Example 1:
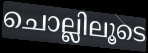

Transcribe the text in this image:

ചൊല്ലിലൂടെ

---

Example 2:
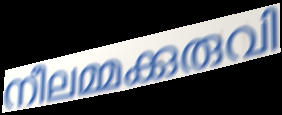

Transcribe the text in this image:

നീലമ്മക്കുരുവി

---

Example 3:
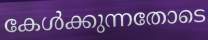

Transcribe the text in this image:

കേൾക്കുന്നതോടെ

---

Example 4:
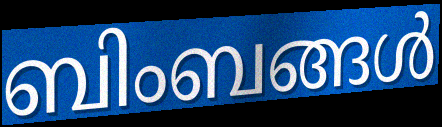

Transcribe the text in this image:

ബിംബങ്ങൾ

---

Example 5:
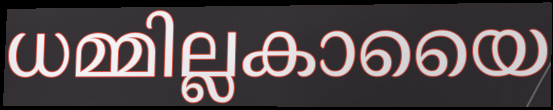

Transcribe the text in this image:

ധമ്മില്ലകായൈ